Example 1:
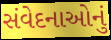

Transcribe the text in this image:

સંવેદનાઓનું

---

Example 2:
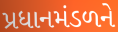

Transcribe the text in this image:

પ્રધાનમંડળને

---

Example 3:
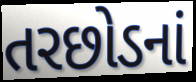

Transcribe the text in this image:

તરછોડનાં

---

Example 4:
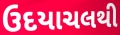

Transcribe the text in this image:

ઉદયાચલથી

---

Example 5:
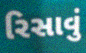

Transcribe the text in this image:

રિસાવું